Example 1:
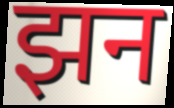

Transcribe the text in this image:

झन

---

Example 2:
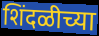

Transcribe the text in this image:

शिंदळीच्या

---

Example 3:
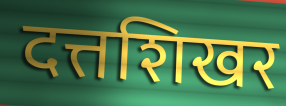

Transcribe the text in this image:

दत्तशिखर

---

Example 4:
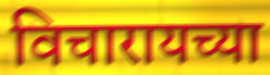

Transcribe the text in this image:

विचारायच्या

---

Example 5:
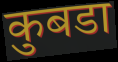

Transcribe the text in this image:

कुबडा